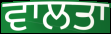
ਵਾਲਤਾ